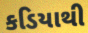
કડિયાથી